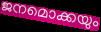
ജനമൊക്കയും